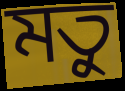
মতু